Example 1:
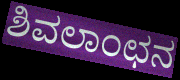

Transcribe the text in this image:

ಶಿವಲಾಂಛನ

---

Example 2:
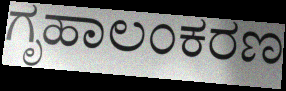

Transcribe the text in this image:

ಗೃಹಾಲಂಕರಣ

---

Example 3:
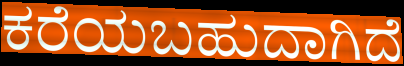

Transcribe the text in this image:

ಕರೆಯಬಹುದಾಗಿದೆ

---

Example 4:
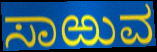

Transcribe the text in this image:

ಸಾಱುವ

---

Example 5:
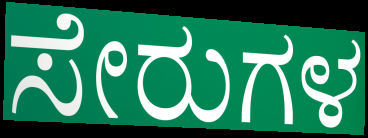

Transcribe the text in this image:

ಸೇರುಗಳ